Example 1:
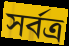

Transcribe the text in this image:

সর্বত্র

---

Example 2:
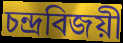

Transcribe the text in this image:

চন্দ্রবিজয়ী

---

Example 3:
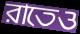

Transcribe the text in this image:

রাতেও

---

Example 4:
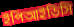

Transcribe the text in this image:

ইপিআইডিসি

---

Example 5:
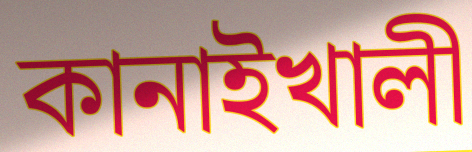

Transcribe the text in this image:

কানাইখালী